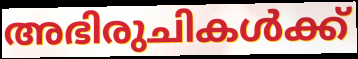
അഭിരുചികൾക്ക്